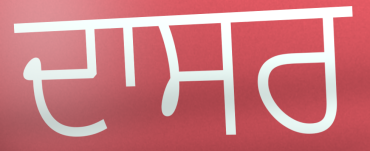
ਦਾਸਰ